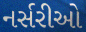
નર્સરીઓ